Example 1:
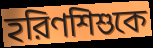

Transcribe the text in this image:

হরিণশিশুকে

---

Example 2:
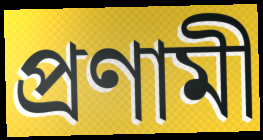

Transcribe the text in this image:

প্রণামী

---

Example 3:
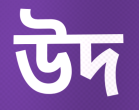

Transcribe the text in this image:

উদ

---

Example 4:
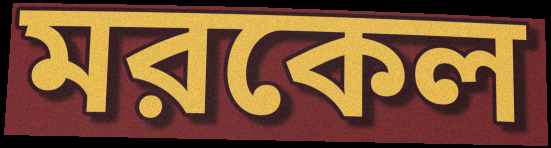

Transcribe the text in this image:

মরকেল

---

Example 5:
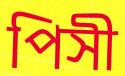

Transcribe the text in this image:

পিসী